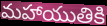
మహాయుతికి